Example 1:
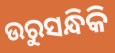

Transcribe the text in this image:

ଉରୁସନ୍ଧିକି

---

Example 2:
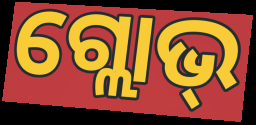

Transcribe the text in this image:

ଗ୍ଲୋଭ୍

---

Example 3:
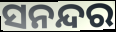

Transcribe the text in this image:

ସନନ୍ଦର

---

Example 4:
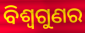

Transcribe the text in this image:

ବିଶ୍ୱଗୁଣର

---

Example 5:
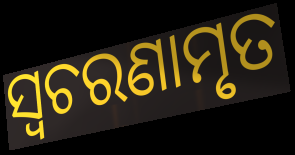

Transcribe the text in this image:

ସ୍ଵଚରଣାମୃତ